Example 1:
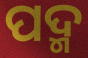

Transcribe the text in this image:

ପଦ୍ମ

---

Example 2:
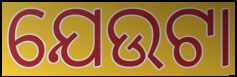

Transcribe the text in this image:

ଯେଉଟା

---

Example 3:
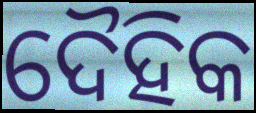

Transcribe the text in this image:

ଦୈହିକ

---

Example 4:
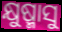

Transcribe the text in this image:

କ୍ଷୁଷ୍ମାସୁ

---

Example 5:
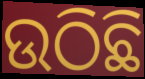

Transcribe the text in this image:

ଉଠିଛି